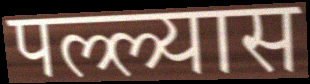
पल्ल्यास